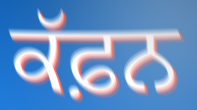
ਕੱਫ਼ਨ